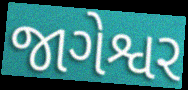
જાગેશ્વર